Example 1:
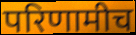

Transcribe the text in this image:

परिणामीच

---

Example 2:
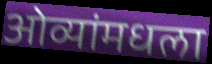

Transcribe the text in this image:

ओव्यांमधला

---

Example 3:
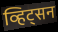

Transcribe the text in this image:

व्हिट्सन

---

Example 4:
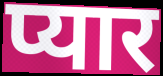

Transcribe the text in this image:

प्यार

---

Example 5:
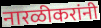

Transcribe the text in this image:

नारळीकरांनी